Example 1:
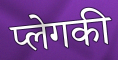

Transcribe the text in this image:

प्लेगकी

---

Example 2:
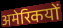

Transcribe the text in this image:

अमेरिकयों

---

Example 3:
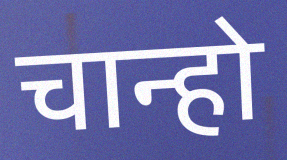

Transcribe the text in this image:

चान्हो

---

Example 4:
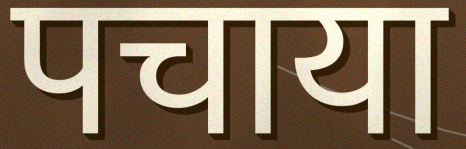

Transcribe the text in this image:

पचाया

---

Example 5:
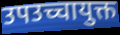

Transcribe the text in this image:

उपउच्चायुक्त